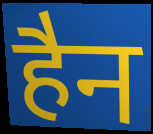
हैन